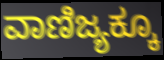
ವಾಣಿಜ್ಯಕ್ಕೂ